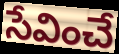
సేవించే